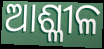
ଆଶ୍ଳୀଳ